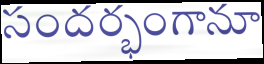
సందర్భంగానూ